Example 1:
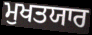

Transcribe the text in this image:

ਮੁਖਤਯਾਰ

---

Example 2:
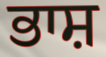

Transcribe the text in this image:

ਭਾਸ਼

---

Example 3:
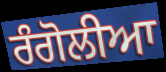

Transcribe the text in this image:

ਰੰਗੋਲੀਆ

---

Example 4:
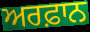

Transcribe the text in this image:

ਅਰਫ਼ਾਨ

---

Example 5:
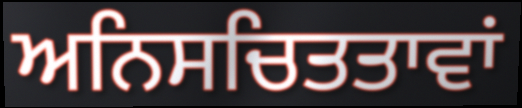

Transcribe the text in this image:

ਅਨਿਸਚਿਤਤਾਵਾਂ